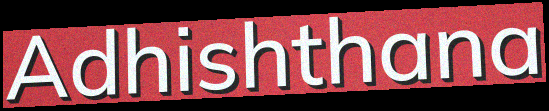
Adhishthana